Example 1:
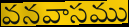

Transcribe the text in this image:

వనవాసము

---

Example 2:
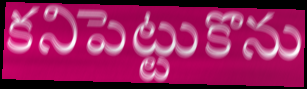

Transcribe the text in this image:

కనిపెట్టుకొను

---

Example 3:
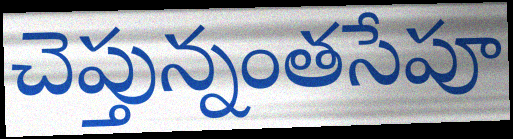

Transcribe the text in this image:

చెప్తున్నంతసేపూ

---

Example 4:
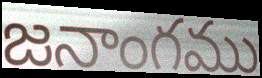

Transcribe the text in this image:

జనాంగము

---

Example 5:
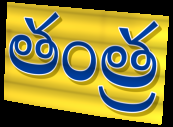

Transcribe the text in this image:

తంత్ర